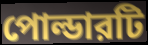
পোল্ডারটি